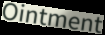
Ointment